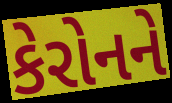
કેરોનને